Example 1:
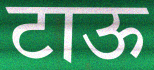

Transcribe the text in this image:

टाऊ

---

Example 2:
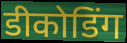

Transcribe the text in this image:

डीकोडिंग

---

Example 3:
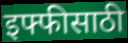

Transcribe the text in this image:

इफ्फीसाठी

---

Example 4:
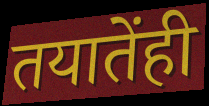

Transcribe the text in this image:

तयातेंही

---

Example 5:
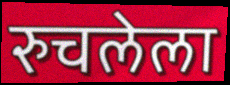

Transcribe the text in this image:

रुचलेला